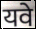
यवे